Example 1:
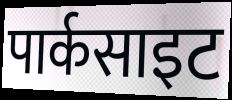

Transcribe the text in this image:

पार्कसाइट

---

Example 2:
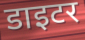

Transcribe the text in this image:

डाइटर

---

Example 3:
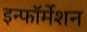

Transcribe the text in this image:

इन्फॉर्मेशन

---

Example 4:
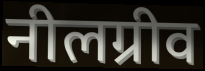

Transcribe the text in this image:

नीलग्रीव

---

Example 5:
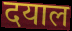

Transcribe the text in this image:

दयाल